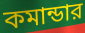
কমান্ডার